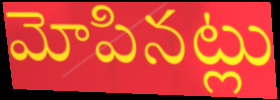
మోపినట్లు